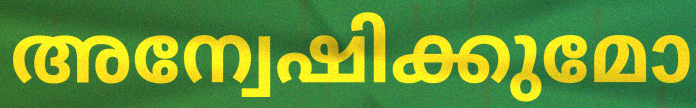
അന്വേഷിക്കുമോ